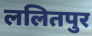
ललितपुर